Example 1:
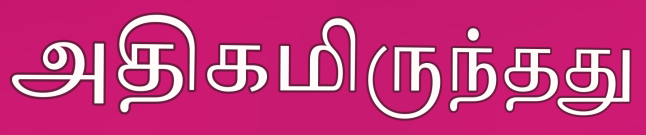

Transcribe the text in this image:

அதிகமிருந்தது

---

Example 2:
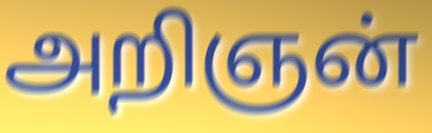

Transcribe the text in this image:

அறிஞன்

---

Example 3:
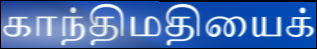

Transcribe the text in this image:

காந்திமதியைக்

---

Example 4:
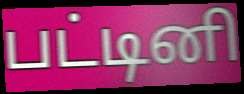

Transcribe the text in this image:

பட்டினி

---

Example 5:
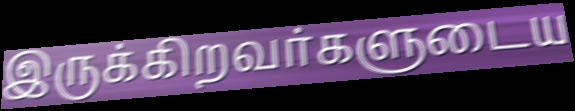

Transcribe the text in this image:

இருக்கிறவர்களுடைய